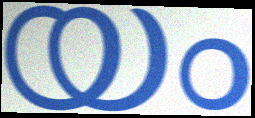
യം